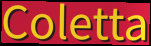
Coletta